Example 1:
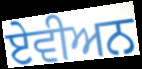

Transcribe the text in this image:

ਏਵੀਅਨ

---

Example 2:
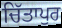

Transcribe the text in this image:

ਚਿੱਤਾਪੁਰ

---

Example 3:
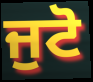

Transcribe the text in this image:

ਜੁਟੋ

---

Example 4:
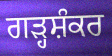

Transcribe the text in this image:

ਗੜ੍ਹਸ਼ੰਕਰ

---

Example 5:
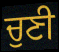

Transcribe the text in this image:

ਚੁਣੀ